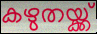
കഴുതയ്ക്ക്